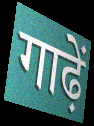
गाढ़ें